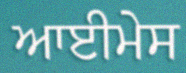
ਆਈਮੇਸ